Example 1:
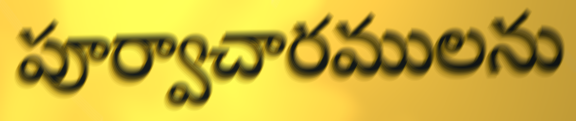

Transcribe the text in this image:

పూర్వాచారములను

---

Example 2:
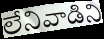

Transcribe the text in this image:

లేనివాడిని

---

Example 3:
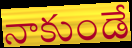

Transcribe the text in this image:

నాకుండే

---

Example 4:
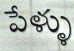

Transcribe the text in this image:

పేళ్ళు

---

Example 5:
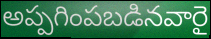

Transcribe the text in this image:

అప్పగింపబడినవారై